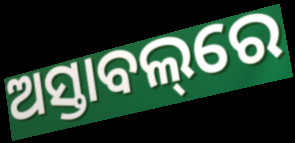
ଅସ୍ତାବଲ୍‌ରେ